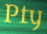
Pty